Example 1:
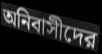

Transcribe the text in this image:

অনিবাসীদের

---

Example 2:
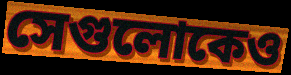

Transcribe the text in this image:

সেগুলোকেও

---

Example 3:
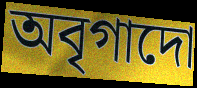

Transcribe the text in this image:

অবৃগাদো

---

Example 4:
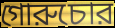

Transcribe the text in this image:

গোরুচোর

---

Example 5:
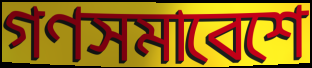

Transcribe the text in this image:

গণসমাবেশে